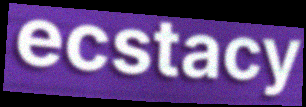
ecstacy